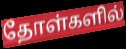
தோள்களில்